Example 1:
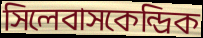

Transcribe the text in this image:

সিলেবাসকেন্দ্রিক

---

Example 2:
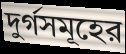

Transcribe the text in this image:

দুর্গসমূহের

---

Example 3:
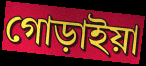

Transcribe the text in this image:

গোড়াইয়া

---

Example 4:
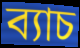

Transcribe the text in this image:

ব্যাচ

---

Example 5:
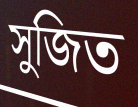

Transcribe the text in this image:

সুজিত